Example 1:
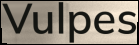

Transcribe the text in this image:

Vulpes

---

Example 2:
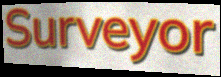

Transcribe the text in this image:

Surveyor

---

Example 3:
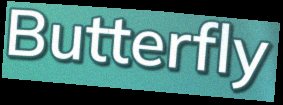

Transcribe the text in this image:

Butterfly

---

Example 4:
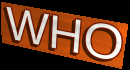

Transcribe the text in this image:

WHO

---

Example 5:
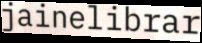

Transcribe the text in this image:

jainelibrar